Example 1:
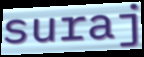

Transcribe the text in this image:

suraj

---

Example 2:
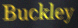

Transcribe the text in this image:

Buckley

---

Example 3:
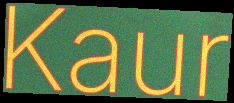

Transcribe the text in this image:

Kaur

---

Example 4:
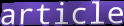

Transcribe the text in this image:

article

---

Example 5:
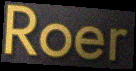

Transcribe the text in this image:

Roer